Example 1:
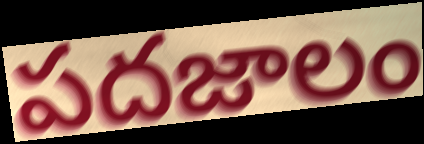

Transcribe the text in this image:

పదజాలం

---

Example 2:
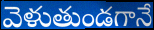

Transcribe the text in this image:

వెళుతుండగానే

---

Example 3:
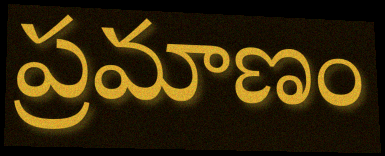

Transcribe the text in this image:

ప్రమాణం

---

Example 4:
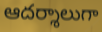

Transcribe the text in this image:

ఆదర్శాలుగా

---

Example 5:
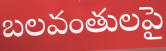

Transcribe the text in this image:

బలవంతులపై